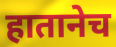
हातानेच